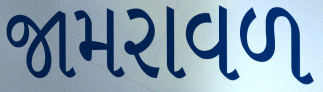
જામરાવળ